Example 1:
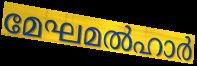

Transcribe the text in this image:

മേഘമൽഹാർ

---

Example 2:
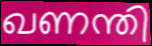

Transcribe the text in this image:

ഖണന്തി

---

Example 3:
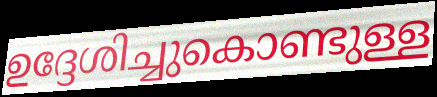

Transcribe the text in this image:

ഉദ്ദേശിച്ചുകൊണ്ടുള്ള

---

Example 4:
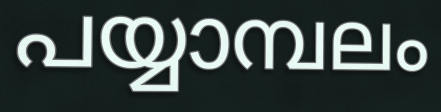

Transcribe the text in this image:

പയ്യാമ്പലം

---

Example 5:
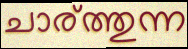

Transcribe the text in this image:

ചാര്ത്തുന്ന